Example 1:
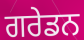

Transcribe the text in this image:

ਗਰੇਡਨ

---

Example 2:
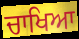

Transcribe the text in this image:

ਚਾਖਿਆ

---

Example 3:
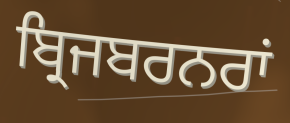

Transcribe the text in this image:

ਬ੍ਰਿਜਬਰਨਰਾਂ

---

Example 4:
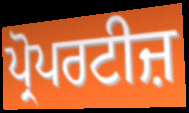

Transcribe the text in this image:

ਪ੍ਰੋਪਰਟੀਜ਼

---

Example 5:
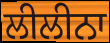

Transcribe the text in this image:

ਲੀਲੀਨਾ